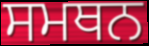
ਸਮਥਨ